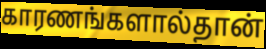
காரணங்களால்தான்